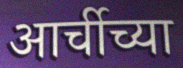
आर्चीच्या